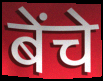
बेंचे